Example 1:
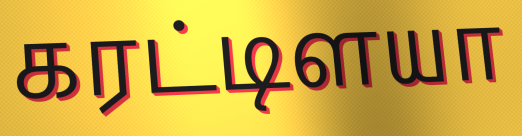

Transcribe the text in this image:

கரட்டிளயா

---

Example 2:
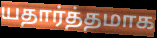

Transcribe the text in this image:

யதார்த்தமாக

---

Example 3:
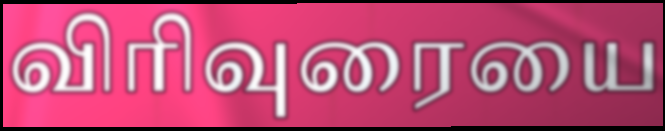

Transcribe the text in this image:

விரிவுரையை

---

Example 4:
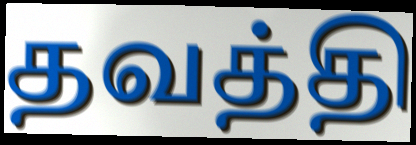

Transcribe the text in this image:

தவத்தி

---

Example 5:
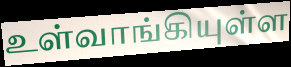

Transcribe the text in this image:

உள்வாங்கியுள்ள